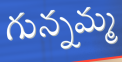
గున్నమ్మ